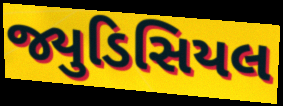
જ્યુડિસિયલ